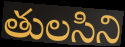
తులసిని